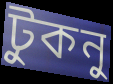
টুকনু